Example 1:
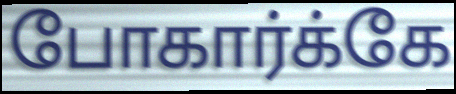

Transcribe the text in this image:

போகார்க்கே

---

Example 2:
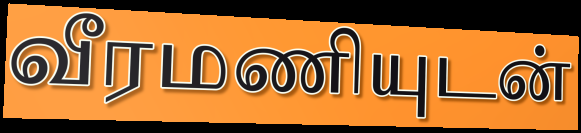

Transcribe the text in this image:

வீரமணியுடன்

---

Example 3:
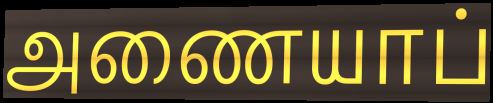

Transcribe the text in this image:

அணையாப்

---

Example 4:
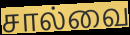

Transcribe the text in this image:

சால்வை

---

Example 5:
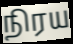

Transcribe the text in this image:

நிரய